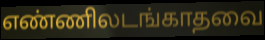
எண்ணிலடங்காதவை